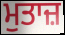
ਮੁਤਾਜ਼